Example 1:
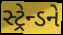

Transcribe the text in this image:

સ્ટ્રેન્ડને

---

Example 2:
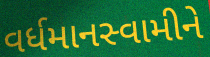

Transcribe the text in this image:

વર્ધમાનસ્વામીને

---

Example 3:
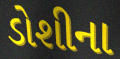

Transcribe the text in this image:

ડોશીના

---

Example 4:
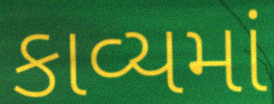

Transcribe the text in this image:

કાવ્યમાં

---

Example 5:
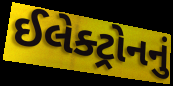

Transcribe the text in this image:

ઈલેક્ટ્રોનનું